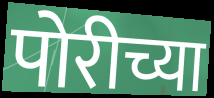
पोरीच्या